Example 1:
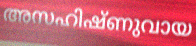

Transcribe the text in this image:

അസഹിഷ്ണുവായ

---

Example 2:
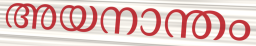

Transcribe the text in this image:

അയനാന്തം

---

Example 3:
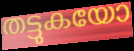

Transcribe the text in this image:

തട്ടുകയോ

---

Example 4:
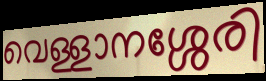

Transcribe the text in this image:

വെള്ളാനശ്ശേരി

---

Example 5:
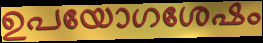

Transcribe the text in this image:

ഉപയോഗശേഷം